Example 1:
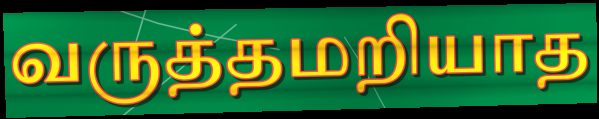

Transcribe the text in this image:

வருத்தமறியாத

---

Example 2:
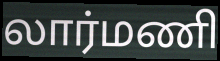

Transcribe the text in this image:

லார்மணி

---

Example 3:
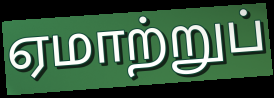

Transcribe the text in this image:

ஏமாற்றுப்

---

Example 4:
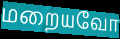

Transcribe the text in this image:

மறையவோ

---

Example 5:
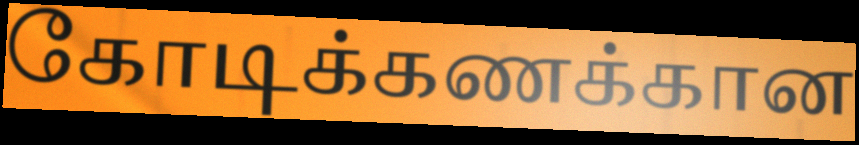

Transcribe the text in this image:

கோடிக்கணக்கான